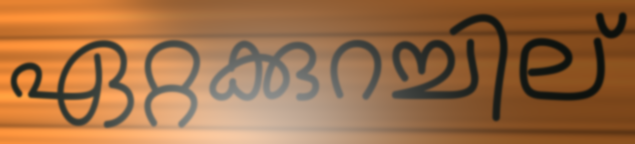
ഏറ്റക്കുറച്ചില്